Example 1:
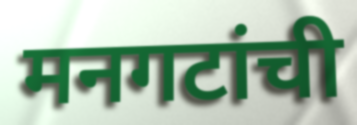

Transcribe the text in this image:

मनगटांची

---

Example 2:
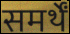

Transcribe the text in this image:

समर्थें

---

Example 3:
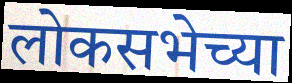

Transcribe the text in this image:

लोकसभेच्या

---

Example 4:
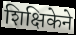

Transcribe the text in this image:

शिक्षिकेने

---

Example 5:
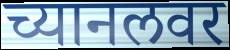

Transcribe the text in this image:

च्यानलवर